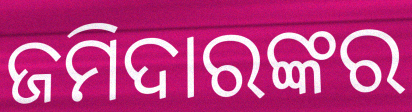
ଜମିଦାରଙ୍କର